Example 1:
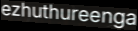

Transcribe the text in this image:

ezhuthureenga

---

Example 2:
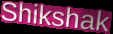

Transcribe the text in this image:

Shikshak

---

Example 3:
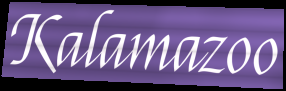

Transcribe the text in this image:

Kalamazoo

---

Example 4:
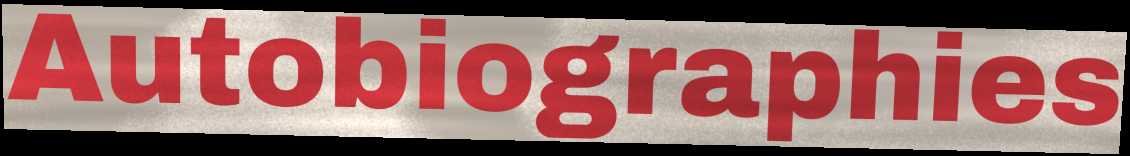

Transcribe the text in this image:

Autobiographies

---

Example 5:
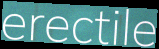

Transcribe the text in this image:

erectile